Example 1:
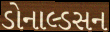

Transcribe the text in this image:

ડોનાલ્ડસન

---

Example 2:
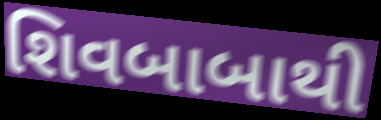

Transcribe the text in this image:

શિવબાબાથી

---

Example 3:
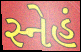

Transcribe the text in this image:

સ્નેહં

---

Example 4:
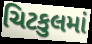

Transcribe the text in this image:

ચિટકુલમાં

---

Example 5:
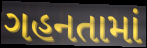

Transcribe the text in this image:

ગહનતામાં